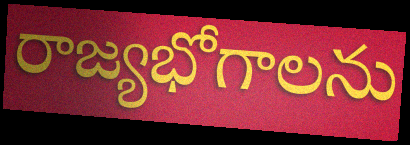
రాజ్యభోగాలను